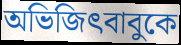
অভিজিৎবাবুকে